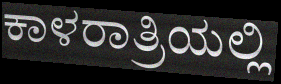
ಕಾಳರಾತ್ರಿಯಲ್ಲಿ